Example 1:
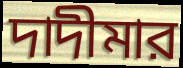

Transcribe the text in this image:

দাদীমার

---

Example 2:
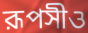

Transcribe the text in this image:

রূপসীও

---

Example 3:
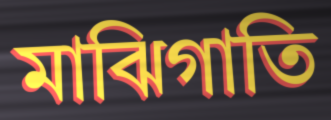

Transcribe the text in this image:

মাঝিগাতি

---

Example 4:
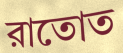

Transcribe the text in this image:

রাতোত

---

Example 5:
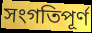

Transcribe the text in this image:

সংগতিপূর্ণ